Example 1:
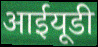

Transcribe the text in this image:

आईयूडी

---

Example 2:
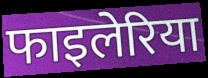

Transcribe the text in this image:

फाइलेरिया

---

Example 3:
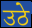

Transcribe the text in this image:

उठे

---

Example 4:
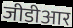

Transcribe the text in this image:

जीडीआर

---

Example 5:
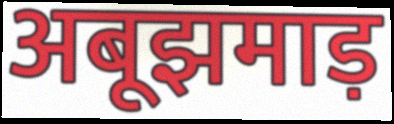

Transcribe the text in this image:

अबूझमाड़